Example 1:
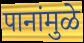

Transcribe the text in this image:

पानांमुळे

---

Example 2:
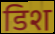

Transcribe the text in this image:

डिश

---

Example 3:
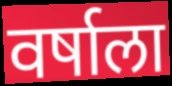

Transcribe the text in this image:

वर्षाला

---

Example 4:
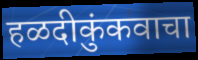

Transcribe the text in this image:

हळदीकुंकवाचा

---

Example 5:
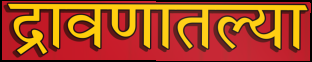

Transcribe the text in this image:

द्रावणातल्या